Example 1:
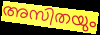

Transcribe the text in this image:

അസിതയും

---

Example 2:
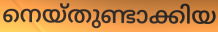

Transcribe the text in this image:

നെയ്തുണ്ടാക്കിയ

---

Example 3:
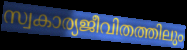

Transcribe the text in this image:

സ്വകാര്യജീവിതത്തിലും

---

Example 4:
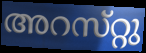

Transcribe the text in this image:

അറസ്‌റ്റു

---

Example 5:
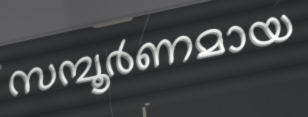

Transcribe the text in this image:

സമ്പൂർണമായ